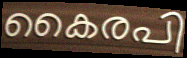
കൈരപി